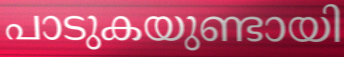
പാടുകയുണ്ടായി